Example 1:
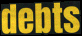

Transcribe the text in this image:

debts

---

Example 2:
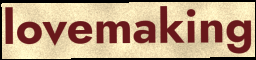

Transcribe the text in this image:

lovemaking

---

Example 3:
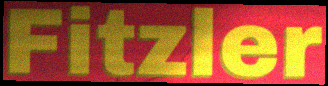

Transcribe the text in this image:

Fitzler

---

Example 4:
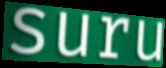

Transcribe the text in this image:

suru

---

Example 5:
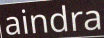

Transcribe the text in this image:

aindra